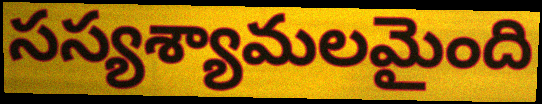
సస్యశ్యామలమైంది